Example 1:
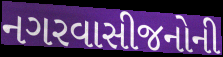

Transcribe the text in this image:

નગરવાસીજનોની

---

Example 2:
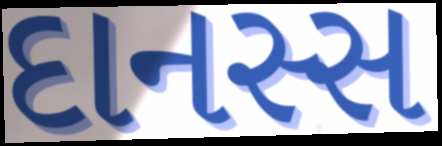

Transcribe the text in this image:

દાનસ્સ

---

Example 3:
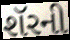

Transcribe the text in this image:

શૅરની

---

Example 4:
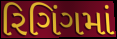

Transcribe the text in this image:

રિગિંગમાં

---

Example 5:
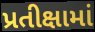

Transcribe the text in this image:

પ્રતીક્ષામાં